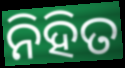
ନିହିତ